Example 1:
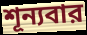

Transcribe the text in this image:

শূন্যবার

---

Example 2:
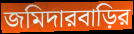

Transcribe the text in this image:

জমিদারবাড়ির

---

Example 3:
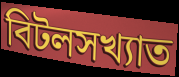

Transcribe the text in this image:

বিটলসখ্যাত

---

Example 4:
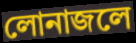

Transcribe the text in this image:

লোনাজলে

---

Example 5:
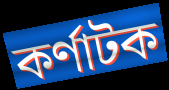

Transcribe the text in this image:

কর্ণাটক